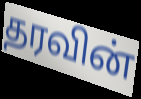
தரவின்